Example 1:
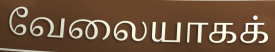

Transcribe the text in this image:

வேலையாகக்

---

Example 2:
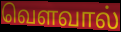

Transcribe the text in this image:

வெளவால்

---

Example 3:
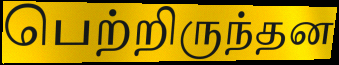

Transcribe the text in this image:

பெற்றிருந்தன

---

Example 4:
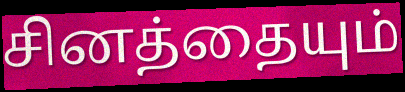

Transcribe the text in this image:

சினத்தையும்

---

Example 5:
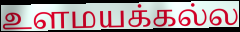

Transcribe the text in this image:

உளமயக்கல்ல